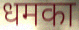
धमका